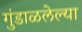
गुंडाळलेल्या